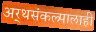
अर्थसंकल्पालाही